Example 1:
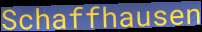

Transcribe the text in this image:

Schaffhausen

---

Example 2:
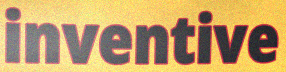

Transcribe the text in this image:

inventive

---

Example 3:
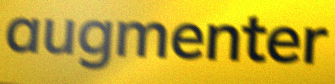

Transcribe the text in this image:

augmenter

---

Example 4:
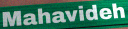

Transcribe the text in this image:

Mahavideh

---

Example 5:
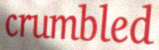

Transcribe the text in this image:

crumbled